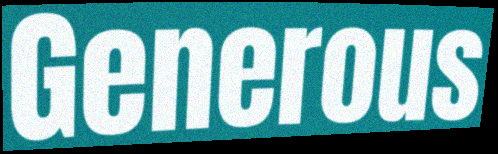
Generous